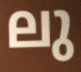
ലു